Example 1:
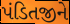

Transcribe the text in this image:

પંડિતજીને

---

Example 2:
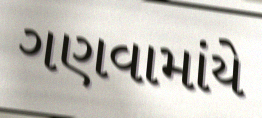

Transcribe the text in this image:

ગણવામાંયે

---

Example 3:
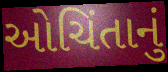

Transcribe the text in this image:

ઓચિંતાનું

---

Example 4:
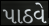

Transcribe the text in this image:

પાઠવે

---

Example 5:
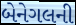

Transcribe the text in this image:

બેનેગલની